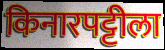
किनारपट्टीला